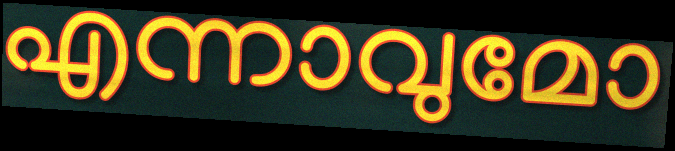
എന്നാവുമോ